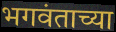
भगवंताच्या